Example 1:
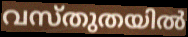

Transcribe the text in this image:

വസ്തുതയിൽ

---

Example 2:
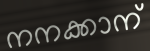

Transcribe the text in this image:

നനക്കാന്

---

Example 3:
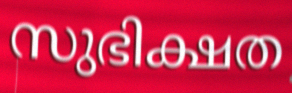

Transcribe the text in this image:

സുഭിക്ഷത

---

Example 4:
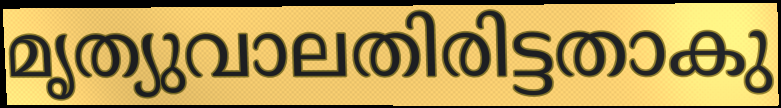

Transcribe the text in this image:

മൃത്യുവാലതിരിട്ടതാകു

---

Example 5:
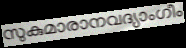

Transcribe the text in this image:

സുകുമാരാനവദ്യാംഗീം